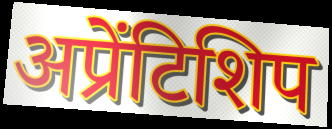
अप्रेंटिशिप